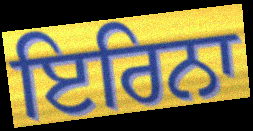
ਇਰਿਨਾ